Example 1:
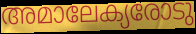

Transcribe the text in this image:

അമാലേക്യരോടു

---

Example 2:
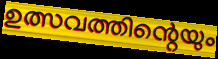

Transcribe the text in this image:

ഉത്സവത്തിന്റെയും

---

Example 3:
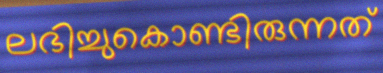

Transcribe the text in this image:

ലഭിച്ചുകൊണ്ടിരുന്നത്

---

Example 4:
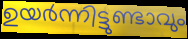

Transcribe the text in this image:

ഉയർന്നിട്ടുണ്ടാവും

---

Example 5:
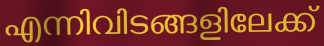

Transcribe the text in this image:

എന്നിവിടങ്ങളിലേക്ക്